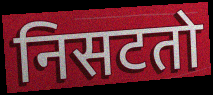
निसटतो